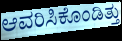
ಆವರಿಸಿಕೊಂಡಿತ್ತು